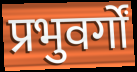
प्रभुवर्गों